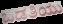
ಒಡತಿಯು